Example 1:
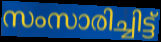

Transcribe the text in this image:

സംസാരിച്ചിട്ട്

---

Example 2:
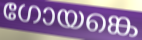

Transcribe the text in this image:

ഗോയങ്കെ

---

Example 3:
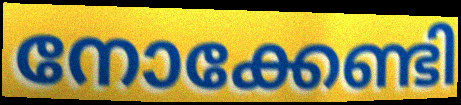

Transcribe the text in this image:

നോക്കേണ്ടി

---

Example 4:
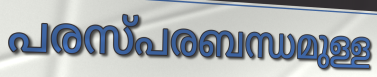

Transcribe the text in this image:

പരസ്പരബന്ധമുള്ള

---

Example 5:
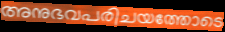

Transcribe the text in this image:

അനുഭവപരിചയത്തോടെ